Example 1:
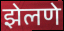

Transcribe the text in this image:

झेलणे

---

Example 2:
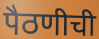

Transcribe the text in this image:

पैठणीची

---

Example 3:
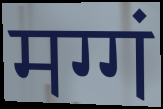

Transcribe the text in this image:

मग्गं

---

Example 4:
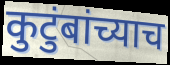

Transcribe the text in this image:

कुटुंबांच्याच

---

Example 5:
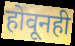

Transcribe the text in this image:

होवूनही